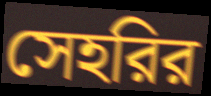
সেহরির